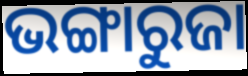
ଭଙ୍ଗାରୁଜା